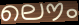
ലൌം